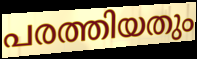
പരത്തിയതും